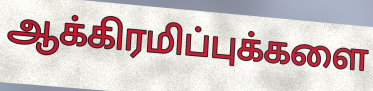
ஆக்கிரமிப்புக்களை